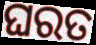
ଘରତ